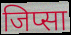
जिप्सा